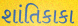
શાંતિકાકા